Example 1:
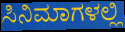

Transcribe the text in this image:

ಸಿನಿಮಾಗಳಲ್ಲಿ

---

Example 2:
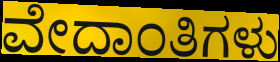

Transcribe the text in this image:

ವೇದಾಂತಿಗಳು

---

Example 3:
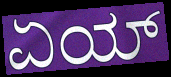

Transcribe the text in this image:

ಏಯ್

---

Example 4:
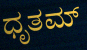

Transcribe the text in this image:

ಧೃತಮ್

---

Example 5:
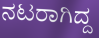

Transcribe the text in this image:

ನಟರಾಗಿದ್ದ